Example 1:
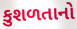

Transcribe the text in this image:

કુશળતાનો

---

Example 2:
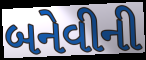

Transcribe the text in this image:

બનેવીની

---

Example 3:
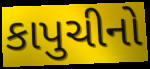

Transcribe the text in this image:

કાપુચીનો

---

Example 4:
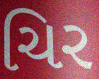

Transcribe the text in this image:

ચિર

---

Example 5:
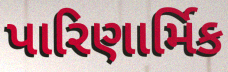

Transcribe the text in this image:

પારિણાર્મિક